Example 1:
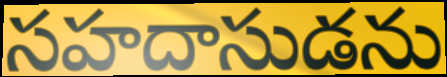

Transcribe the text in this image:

సహదాసుడను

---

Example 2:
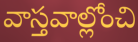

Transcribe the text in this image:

వాస్తవాల్లోంచి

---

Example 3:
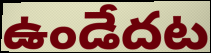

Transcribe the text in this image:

ఉండేదట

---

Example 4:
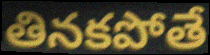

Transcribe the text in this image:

తినకపోతే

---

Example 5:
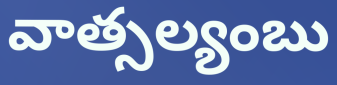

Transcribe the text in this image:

వాత్సల్యంబు